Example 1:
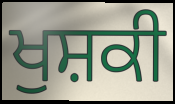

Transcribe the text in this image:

ਖੁਸ਼ਕੀ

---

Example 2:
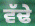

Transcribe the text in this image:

ਵੱਢੇ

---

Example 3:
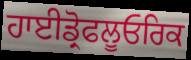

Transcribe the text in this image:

ਹਾਈਡ੍ਰੋਫਲੂਓਰਿਕ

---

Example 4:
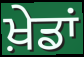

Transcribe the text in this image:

ਖ਼ੇਡਾਂ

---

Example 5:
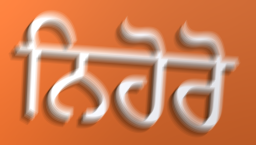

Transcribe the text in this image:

ਨਿਹੋਰੋ